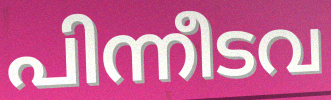
പിന്നീടവ